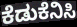
ಕೆಡುಕೆನಿಸಿ